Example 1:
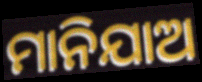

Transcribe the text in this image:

ମାନିଯାଅ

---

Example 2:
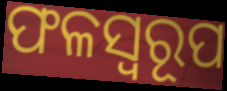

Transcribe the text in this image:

ଫଳସ୍ୱରୂପ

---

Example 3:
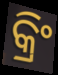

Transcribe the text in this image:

କ୍ରିଂ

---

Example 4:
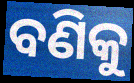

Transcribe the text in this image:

ବଣିକୁ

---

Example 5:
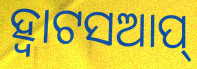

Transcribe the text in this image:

ହ୍ବାଟସଆପ୍